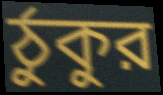
ঠুকুর